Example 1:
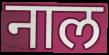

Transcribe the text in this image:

नाल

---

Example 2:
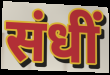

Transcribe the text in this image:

संधीं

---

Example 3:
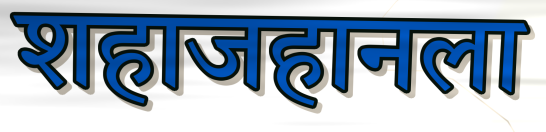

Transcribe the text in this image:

शहाजहानला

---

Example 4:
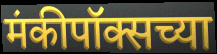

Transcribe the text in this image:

मंकीपॉक्सच्या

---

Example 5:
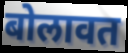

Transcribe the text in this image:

बोलावत